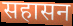
सहासन